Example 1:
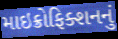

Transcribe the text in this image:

માઇક્રોફિક્શનનું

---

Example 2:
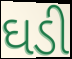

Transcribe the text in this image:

ઘડી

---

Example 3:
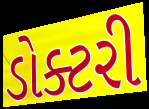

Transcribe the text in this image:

ડોક્ટરી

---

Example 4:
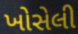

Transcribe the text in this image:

ખોસેલી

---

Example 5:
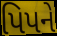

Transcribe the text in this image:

પિપને